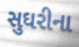
સુઘરીના